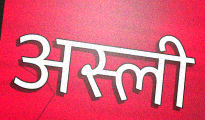
अस्ली